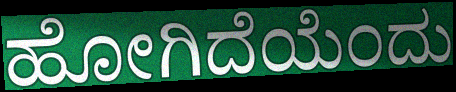
ಹೋಗಿದೆಯೆಂದು